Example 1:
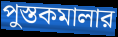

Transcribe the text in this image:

পুস্তকমালার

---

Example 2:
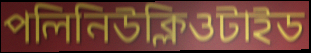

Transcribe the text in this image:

পলিনিউক্লিওটাইড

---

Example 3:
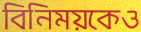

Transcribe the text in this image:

বিনিময়কেও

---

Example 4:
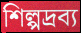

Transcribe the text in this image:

শিল্পদ্রব্য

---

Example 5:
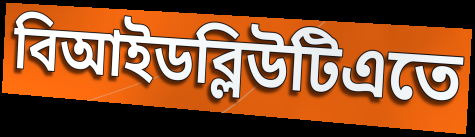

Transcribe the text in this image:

বিআইডব্লিউটিএতে